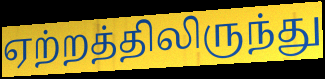
ஏற்றத்திலிருந்து